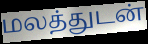
மலத்துடன்